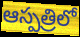
ఆస్పత్రిలో